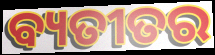
ବ୍ୟତୀତର